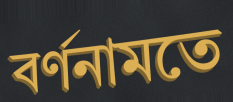
বর্ণনামতে